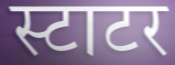
स्टाटर